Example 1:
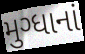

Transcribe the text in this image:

મુગ્ધાનાં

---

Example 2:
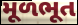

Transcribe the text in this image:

મૂળભૂત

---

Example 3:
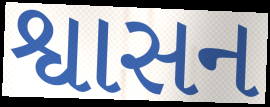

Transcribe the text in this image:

શ્વાસન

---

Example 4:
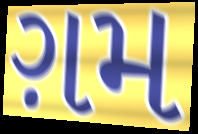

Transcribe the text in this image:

ગ઼મ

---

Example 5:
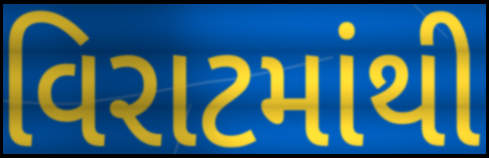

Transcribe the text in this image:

વિરાટમાંથી